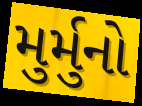
મુર્મુનો